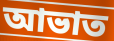
আভাত